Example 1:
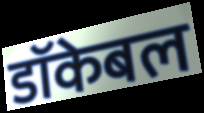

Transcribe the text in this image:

डॉकेबल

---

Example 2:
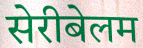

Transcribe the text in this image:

सेरीबेलम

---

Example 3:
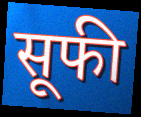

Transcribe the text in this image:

सूफी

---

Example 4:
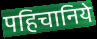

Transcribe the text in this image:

पहिचानिये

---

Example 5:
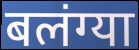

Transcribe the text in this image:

बलंग्या